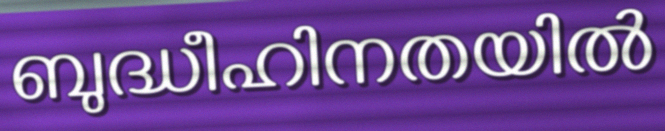
ബുദ്ധീഹിനതയിൽ